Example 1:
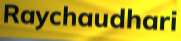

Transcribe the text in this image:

Raychaudhari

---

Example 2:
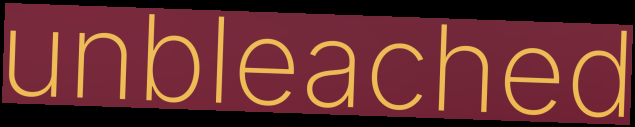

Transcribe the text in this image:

unbleached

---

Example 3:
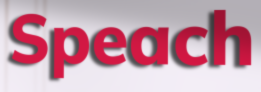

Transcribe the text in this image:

Speach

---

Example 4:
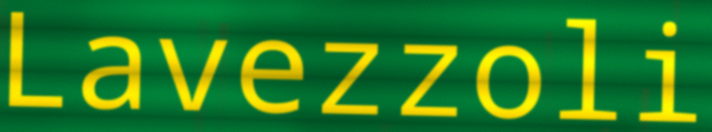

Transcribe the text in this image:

Lavezzoli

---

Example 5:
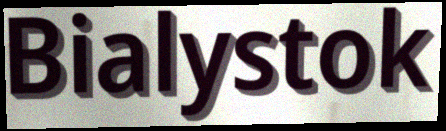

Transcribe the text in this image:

Bialystok